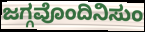
ಜಗ್ಗವೊಂದಿನಿಸುಂ